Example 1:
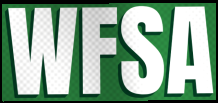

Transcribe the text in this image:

WFSA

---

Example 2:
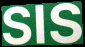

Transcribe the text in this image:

SIS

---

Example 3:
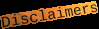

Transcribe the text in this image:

Disclaimers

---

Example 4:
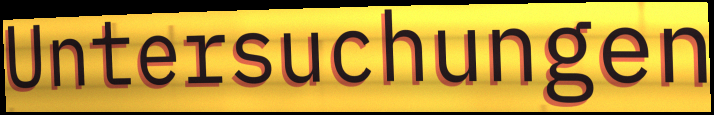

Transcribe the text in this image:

Untersuchungen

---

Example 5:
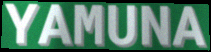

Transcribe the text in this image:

YAMUNA